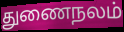
துணைநலம்